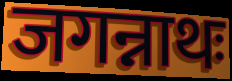
जगन्नाथः